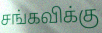
சங்கவிக்கு